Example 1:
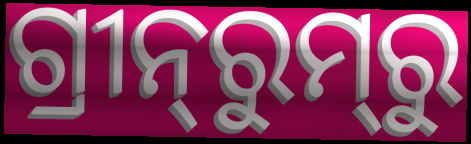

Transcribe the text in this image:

ଗ୍ରୀନ୍‌ରୁମ୍‌ରୁ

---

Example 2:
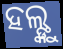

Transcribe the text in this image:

ହଲ୍ଙ୍କୁ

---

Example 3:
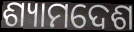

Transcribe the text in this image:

ଶ୍ୟାମଦେଶ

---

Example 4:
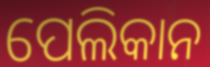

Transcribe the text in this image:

ପେଲିକାନ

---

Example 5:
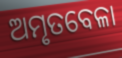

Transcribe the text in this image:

ଅମୃତବେଳା